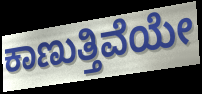
ಕಾಣುತ್ತಿವೆಯೇ